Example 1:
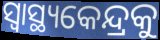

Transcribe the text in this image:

ସ୍ୱାସ୍ଥ୍ୟକେନ୍ଦ୍ରକୁ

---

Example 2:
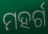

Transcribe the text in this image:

ମହର୍ଗ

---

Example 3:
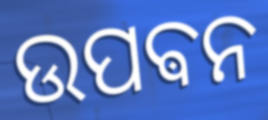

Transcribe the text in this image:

ଉପଵନ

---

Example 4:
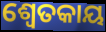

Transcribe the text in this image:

ଶ୍ବେତକାୟ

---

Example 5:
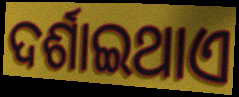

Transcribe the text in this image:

ଦର୍ଶାଇଥାଏ